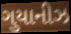
ગુયાનીઝ